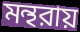
মন্থরায়